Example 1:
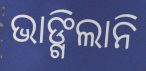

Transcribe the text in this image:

ଭାଙ୍ଗିଲାନି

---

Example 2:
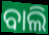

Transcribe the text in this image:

ବାଲି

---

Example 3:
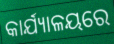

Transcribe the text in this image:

କାର୍ଯ୍ୟାଳୟରେ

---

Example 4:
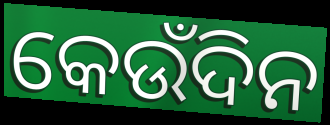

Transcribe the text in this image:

କେଉଁଦିନ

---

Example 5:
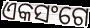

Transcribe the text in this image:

ଏକସଂଗେ